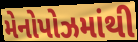
મેનોપોઝમાંથી